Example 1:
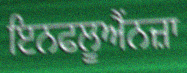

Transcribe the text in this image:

ਇਨਫਲੂਐਂਨਜ਼ਾ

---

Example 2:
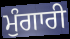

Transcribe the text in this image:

ਮੁੰਗਾਰੀ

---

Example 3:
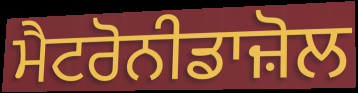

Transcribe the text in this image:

ਮੈਟਰੋਨੀਡਾਜ਼ੋਲ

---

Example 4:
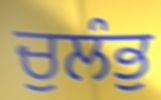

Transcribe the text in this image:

ਚੁਲੰਭੁ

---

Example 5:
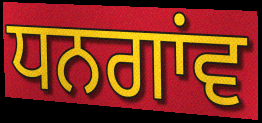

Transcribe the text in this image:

ਧਨਗਾਂਵ